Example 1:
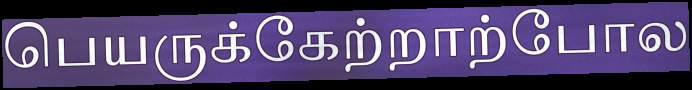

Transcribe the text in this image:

பெயருக்கேற்றாற்போல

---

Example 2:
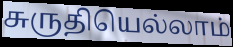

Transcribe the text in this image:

சுருதியெல்லாம்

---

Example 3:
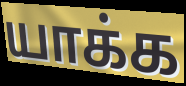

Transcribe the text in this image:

யாக்க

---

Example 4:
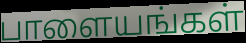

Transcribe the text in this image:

பாளையங்கள்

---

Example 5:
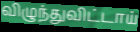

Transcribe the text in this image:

விழுந்துவிட்டாய்